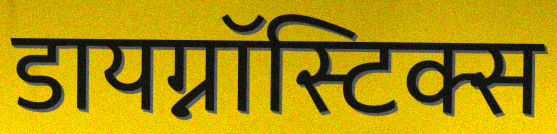
डायग्नॉस्टिक्स